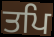
ਤਪਿ